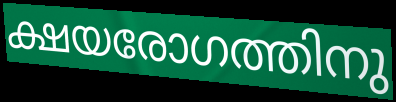
ക്ഷയരോഗത്തിനു